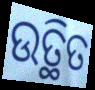
ଉତ୍ଥିତ